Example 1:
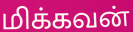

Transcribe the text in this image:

மிக்கவன்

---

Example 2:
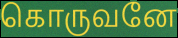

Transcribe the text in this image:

கொருவனே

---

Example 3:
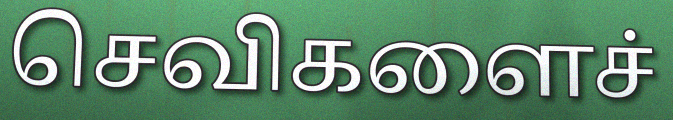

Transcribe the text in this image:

செவிகளைச்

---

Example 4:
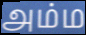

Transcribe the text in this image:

அம்ம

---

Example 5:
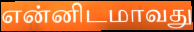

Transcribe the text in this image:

என்னிடமாவது